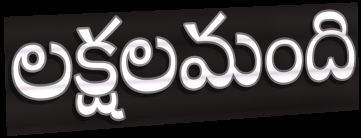
లక్షలమంది